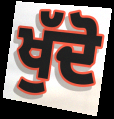
ਖੁੱਦੋ